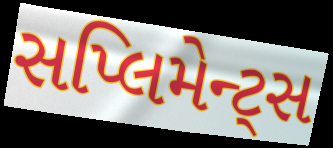
સપ્લિમેન્ટ્સ